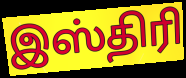
இஸ்திரி